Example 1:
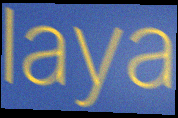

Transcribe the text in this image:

laya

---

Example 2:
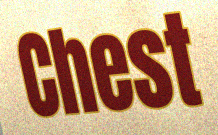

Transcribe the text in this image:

Chest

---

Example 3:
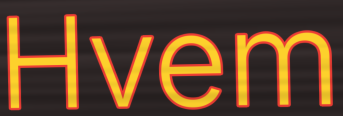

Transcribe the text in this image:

Hvem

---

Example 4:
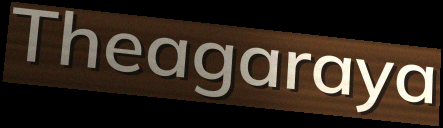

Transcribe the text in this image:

Theagaraya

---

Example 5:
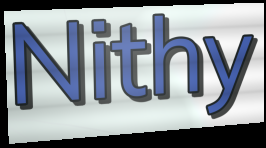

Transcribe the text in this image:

Nithy